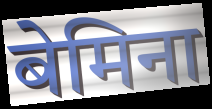
बेमिना